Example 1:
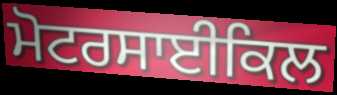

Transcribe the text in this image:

ਮੋਟਰਸਾਈਕਿਲ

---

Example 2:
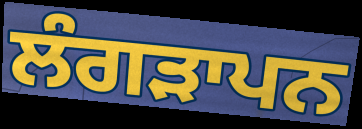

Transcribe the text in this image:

ਲੰਗੜਾਪਨ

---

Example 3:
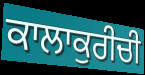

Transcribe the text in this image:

ਕਾਲਾਕੁਰੀਚੀ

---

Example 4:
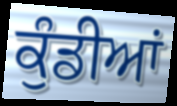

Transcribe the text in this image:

ਕੁੰਡੀਆਂ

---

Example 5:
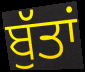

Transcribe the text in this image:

ਬੁੱਤਾਂ